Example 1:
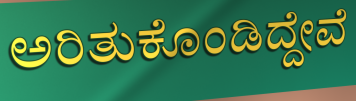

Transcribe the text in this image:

ಅರಿತುಕೊಂಡಿದ್ದೇವೆ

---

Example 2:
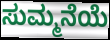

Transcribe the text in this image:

ಸುಮ್ಮನೆಯೆ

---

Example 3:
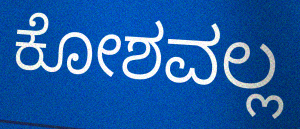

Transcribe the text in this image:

ಕೋಶವಲ್ಲ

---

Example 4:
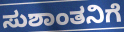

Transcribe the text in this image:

ಸುಶಾಂತನಿಗೆ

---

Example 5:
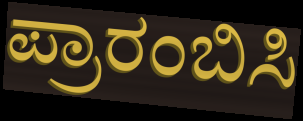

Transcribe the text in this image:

ಪ್ರಾರಂಬಿಸಿ